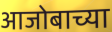
आजोबाच्या